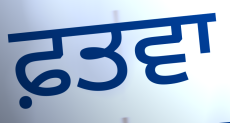
ਫ਼ਤਵਾ